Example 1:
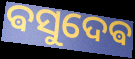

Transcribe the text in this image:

ଵସୁଦେଵ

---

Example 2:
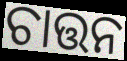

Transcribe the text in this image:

ଚାତ୍ତନ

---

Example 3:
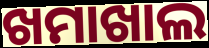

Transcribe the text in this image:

ଖମାଖାଲ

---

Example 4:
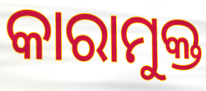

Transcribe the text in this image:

କାରାମୁକ୍ତ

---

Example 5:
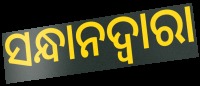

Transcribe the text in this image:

ସନ୍ଧାନଦ୍ୱାରା